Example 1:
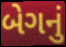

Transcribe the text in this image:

બેગનું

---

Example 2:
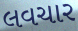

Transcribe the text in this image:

લવચાર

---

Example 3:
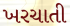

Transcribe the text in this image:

ખરચાતી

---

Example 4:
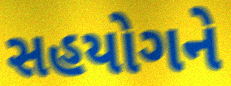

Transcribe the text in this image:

સહયોગને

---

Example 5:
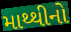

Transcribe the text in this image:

માથ્થીનો